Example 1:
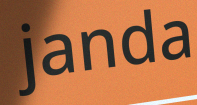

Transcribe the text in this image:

janda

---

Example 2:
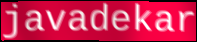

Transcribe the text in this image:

javadekar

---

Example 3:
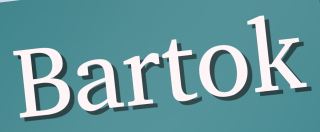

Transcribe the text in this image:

Bartok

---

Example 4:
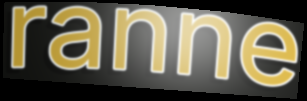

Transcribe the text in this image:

ranne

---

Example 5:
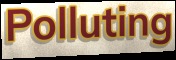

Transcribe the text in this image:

Polluting